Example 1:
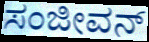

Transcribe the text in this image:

ಸಂಜೀವನ್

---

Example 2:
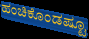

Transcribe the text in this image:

ಹಂಚಿಕೊಂಡಷ್ಟೂ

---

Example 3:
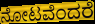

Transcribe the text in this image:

ನೋಟವೆಂದರೆ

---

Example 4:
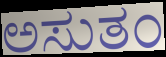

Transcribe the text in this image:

ಅಸುತಂ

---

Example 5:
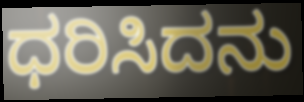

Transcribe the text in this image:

ಧರಿಸಿದನು